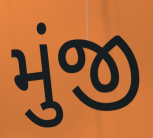
મુંજી